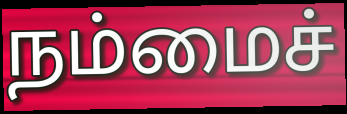
நம்மைச்